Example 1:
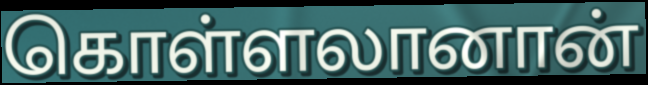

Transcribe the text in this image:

கொள்ளலானான்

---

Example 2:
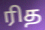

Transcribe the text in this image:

ரித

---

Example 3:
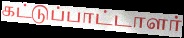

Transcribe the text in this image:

கட்டுப்பாட்டாளர்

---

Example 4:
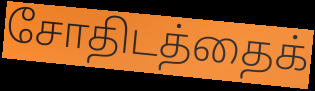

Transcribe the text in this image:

சோதிடத்தைக்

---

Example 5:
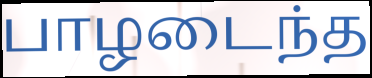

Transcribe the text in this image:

பாழடைந்த